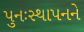
પુનઃસ્થાપનને